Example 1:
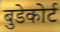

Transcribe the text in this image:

बुडेकोर्ट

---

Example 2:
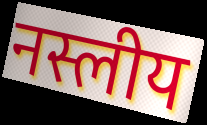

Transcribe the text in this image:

नस्लीय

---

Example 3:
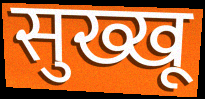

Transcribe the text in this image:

सुख्खू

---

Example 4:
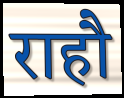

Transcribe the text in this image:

राहौ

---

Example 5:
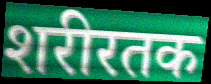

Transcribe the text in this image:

शरीरतक